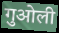
गुओली